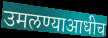
उमलण्याआधीच